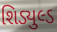
શિડ્યુલ્ડ